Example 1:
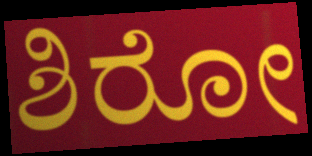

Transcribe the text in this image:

ಶಿರೋ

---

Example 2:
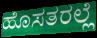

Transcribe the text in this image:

ಹೊಸತರಲ್ಲೆ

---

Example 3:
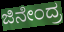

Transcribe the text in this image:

ಜಿನೇಂದ್ರ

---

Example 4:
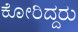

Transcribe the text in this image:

ಕೋರಿದ್ದರು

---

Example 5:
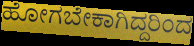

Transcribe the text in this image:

ಹೋಗಬೇಕಾಗಿದ್ದರಿಂದ